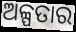
ଅଳ୍ପତାର